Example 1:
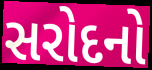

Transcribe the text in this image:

સરોદનો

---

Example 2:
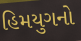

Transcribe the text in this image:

હિમયુગનો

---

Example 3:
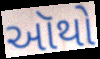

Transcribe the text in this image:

ઑથો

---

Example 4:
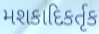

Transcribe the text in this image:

મશકાદિકર્તૃક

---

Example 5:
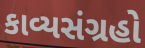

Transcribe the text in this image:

કાવ્યસંગ્રહો